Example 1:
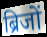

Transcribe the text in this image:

ब्रिजों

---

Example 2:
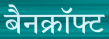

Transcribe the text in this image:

बैनक्रॉफ्ट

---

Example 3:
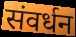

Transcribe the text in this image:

संवर्धन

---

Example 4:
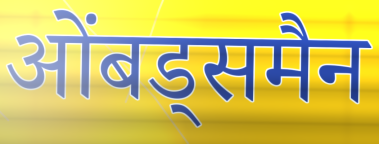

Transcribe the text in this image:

ओंबड्समैन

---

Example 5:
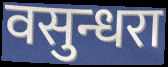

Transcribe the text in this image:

वसुन्धरा